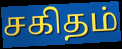
சகிதம்